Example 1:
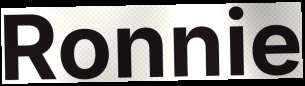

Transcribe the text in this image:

Ronnie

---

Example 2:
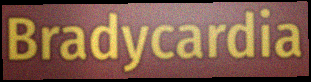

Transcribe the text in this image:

Bradycardia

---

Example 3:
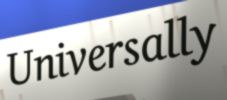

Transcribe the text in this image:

Universally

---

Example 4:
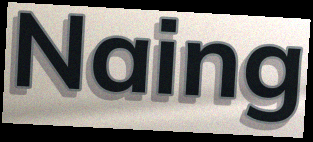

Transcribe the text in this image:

Naing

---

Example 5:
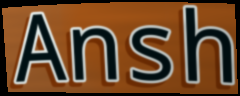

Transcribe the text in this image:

Ansh